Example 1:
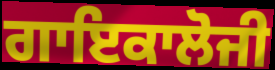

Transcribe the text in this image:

ਗਾਇਕਾਲੋਜੀ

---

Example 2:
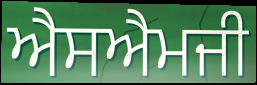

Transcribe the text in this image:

ਐਸਐਮਜੀ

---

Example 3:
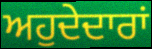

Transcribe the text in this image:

ਅਹੁਦੇਦਾਰਾਂ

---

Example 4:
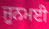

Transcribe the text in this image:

ਜੂਨਮਈ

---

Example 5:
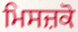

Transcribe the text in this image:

ਮਿਸਜ਼ਕੋ